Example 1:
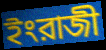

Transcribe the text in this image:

ইংরাজী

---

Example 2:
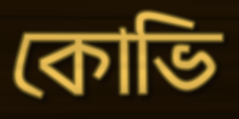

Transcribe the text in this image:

কোভি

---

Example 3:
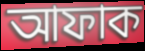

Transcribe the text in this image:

আফাক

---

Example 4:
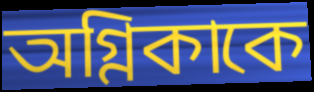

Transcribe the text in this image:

অগ্নিকাকে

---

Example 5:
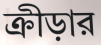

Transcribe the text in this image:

ক্রীড়ার